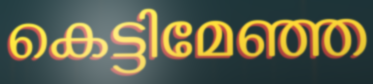
കെട്ടിമേഞ്ഞ